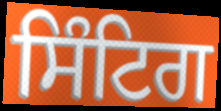
ਸਿੰਟਿਗ